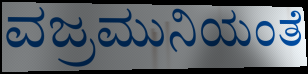
ವಜ್ರಮುನಿಯಂತೆ